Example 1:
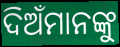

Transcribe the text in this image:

ଦିଅଁମାନଙ୍କୁ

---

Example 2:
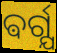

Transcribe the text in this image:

ଵର୍ଗ୍ଯ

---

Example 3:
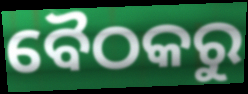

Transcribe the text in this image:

ବୈଠକରୁ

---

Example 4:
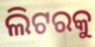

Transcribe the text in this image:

ଲିଟରକୁ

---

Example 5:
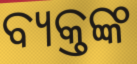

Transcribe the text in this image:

ବ୍ୟକ୍ତଙ୍କ